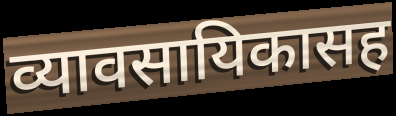
व्यावसायिकासह